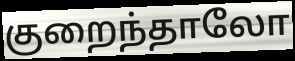
குறைந்தாலோ